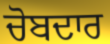
ਚੋਬਦਾਰ